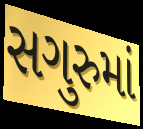
સગુરુમાં